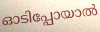
ഓടിപ്പോയാൽ